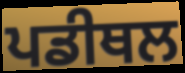
ਪਡੀਥਲ